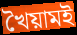
খৈয়ামই